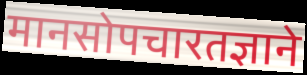
मानसोपचारतज्ञाने